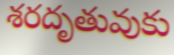
శరదృతువుకు